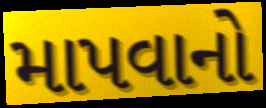
માપવાનો